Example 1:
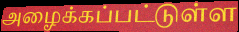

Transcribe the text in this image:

அழைக்கப்பட்டுள்ள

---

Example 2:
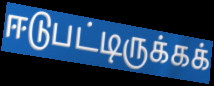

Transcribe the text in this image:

ஈடுபட்டிருக்கக்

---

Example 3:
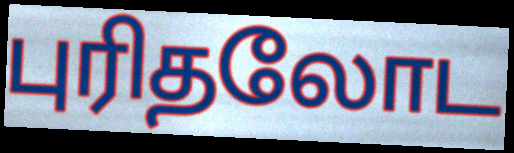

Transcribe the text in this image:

புரிதலோட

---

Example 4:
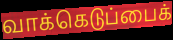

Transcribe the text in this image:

வாக்கெடுப்பைக்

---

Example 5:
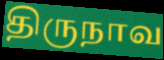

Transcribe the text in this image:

திருநாவ